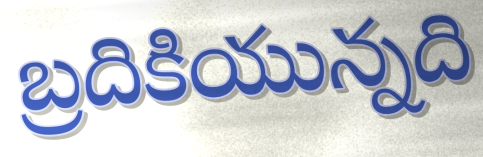
బ్రదికియున్నది